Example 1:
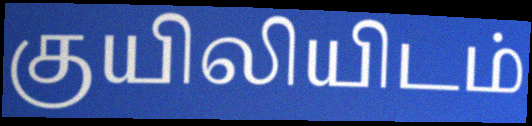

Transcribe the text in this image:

குயிலியிடம்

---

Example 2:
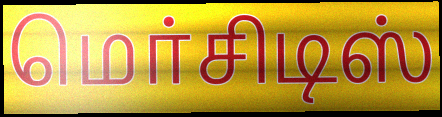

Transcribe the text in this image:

மெர்சிடிஸ்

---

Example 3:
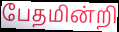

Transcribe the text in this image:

பேதமின்றி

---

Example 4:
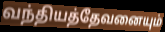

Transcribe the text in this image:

வந்தியத்தேவனையும்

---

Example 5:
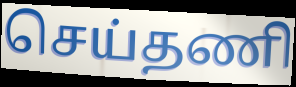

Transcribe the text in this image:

செய்தணி